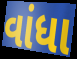
વાંધા